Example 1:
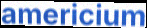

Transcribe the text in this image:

americium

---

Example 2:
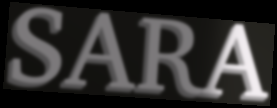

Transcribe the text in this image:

SARA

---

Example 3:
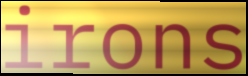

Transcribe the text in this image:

irons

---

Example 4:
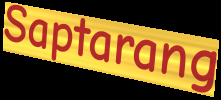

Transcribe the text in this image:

Saptarang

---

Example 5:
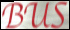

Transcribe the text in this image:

BUS